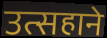
उत्सहाने